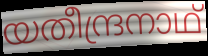
യതീന്ദ്രനാഥ്